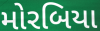
મોરબિયા